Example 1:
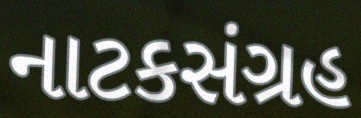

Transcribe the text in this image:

નાટકસંગ્રહ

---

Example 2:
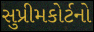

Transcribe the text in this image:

સુપ્રીમકોર્ટનો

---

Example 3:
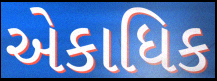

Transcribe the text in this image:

એકાધિક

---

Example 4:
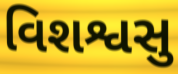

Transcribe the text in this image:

વિશશ્વસુ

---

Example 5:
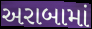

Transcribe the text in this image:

અરાબામાં